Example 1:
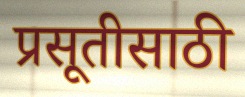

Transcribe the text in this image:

प्रसूतीसाठी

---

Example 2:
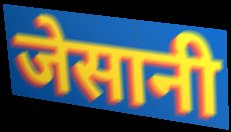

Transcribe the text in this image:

जेसानी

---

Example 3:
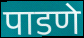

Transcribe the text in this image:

पाडणे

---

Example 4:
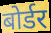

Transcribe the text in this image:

बोर्डर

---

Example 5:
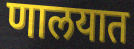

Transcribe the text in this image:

णालयात